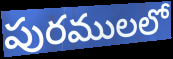
పురములలో